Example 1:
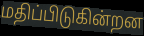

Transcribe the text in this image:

மதிப்பிடுகின்றன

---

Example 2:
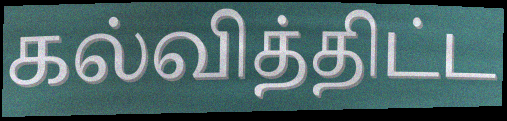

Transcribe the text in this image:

கல்வித்திட்ட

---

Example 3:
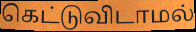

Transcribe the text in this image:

கெட்டுவிடாமல்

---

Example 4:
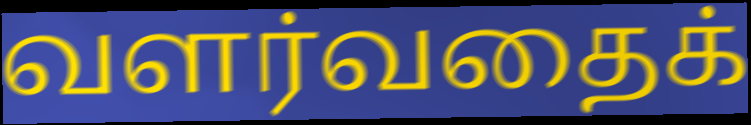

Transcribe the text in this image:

வளர்வதைக்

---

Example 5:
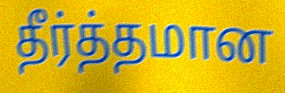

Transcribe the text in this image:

தீர்த்தமான